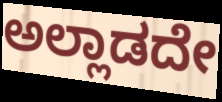
ಅಲ್ಲಾಡದೇ